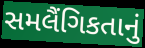
સમલૈંગિકતાનું